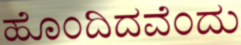
ಹೊಂದಿದವೆಂದು